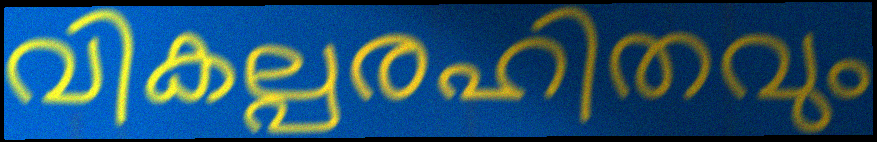
വികല്പരഹിതവും